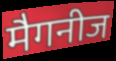
मैगनीज